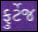
ફુર્ટેજ